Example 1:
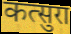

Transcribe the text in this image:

कत्सुरा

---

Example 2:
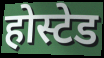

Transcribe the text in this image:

होस्टेड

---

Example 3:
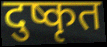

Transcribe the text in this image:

दुष्कृत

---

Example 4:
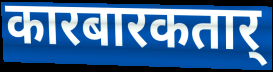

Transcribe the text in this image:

कारबारकतार्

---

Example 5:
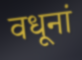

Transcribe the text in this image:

वधूनां